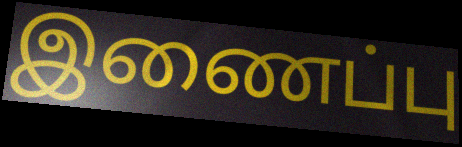
இணைப்பு